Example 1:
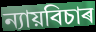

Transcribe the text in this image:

ন্যায়বিচাৰ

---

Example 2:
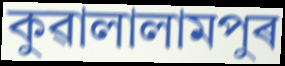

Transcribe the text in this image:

কুৱালালামপুৰ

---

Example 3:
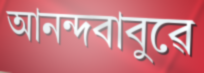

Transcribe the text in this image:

আনন্দবাবুৱে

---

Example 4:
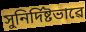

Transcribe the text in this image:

সুনিৰ্দিষ্টভাৱে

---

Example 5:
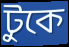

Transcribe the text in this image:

টুকে